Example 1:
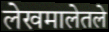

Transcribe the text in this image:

लेखमालेतले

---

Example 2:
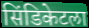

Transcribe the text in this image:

सिंडिकेटला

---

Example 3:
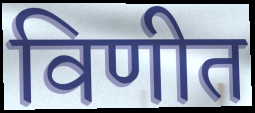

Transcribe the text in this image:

विणीत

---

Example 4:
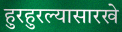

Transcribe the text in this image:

हुरहुरल्यासारखे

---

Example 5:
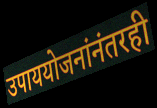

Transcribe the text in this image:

उपाययोजनांनंतरही